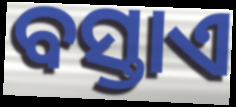
ବସ୍ତାଏ